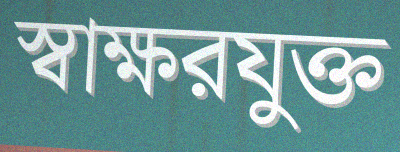
স্বাক্ষরযুক্ত